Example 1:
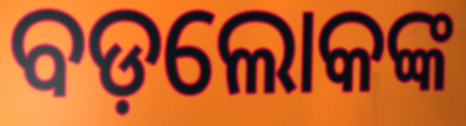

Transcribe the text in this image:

ବଡ଼ଲୋକଙ୍କ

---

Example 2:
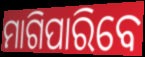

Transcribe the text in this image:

ମାଗିପାରିବେ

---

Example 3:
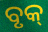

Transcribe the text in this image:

ବୃକ୍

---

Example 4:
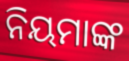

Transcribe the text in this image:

ନିୟମାଙ୍କ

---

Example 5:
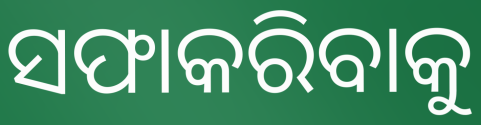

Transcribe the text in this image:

ସଫାକରିବାକୁ